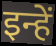
इन्‍हें